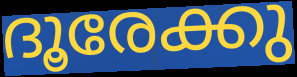
ദൂരേക്കു